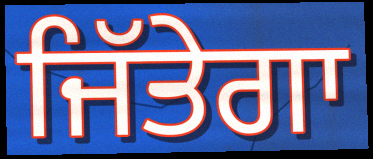
ਜਿੱਤੇਗਾ